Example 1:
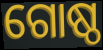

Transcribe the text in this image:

ଗୋଷ୍ଠ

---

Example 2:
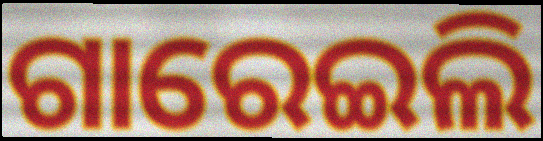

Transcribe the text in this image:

ଗାରେଇଲି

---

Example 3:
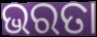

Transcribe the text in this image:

ଭରତା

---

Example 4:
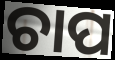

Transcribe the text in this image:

ଚାପ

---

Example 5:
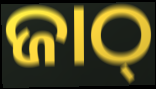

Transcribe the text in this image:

ଜାଠ୍